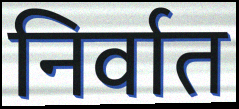
निर्वात